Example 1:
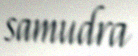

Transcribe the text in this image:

samudra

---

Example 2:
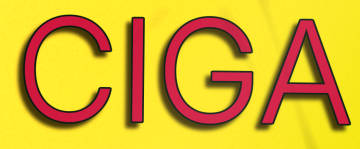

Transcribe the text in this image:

CIGA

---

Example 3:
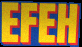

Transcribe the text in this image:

EFEH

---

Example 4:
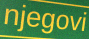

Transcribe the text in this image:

njegovi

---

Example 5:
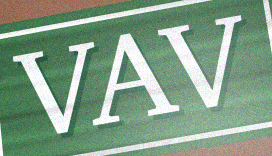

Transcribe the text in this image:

VAV